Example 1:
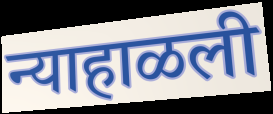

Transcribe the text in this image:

न्याहाळली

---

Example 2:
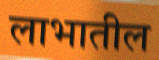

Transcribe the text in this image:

लाभातील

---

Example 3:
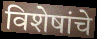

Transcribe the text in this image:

विशेषांचे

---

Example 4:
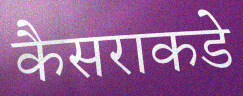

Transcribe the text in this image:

कैसराकडे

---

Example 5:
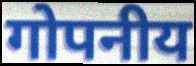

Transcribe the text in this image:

गोपनीय